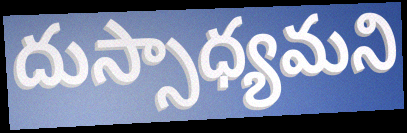
దుస్సాధ్యమని